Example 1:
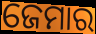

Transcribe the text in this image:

ଜେମାର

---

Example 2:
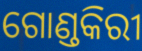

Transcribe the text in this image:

ଗୋଣ୍ଡକିରୀ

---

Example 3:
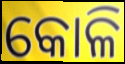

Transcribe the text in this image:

କୋଳି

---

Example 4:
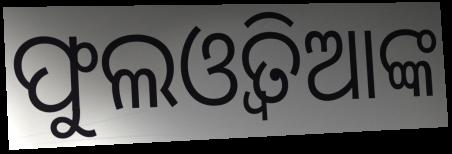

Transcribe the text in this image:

ଫୁଲଓ୍ୱତିଆଙ୍କ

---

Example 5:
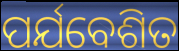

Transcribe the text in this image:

ପର୍ଯବେଶିତ